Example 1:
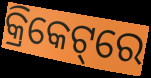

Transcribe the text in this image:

କ୍ରିକେଟ୍‌ରେ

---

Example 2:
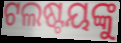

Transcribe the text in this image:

ଟଲଷ୍ଟୟଙ୍କୁ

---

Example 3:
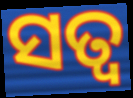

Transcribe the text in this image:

ସତ୍ୱ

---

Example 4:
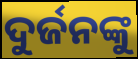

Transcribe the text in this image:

ଦୁର୍ଜନଙ୍କୁ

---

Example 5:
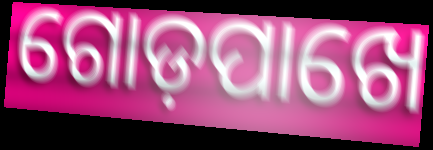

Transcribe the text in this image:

ଗୋଡ଼ପାଖେ